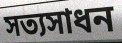
সত্যসাধন